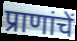
प्राणांचें